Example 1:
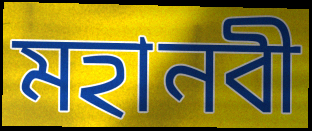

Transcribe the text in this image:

মহানবী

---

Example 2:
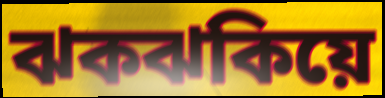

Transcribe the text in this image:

ঝকঝকিয়ে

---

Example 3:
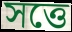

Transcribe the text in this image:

সত্তে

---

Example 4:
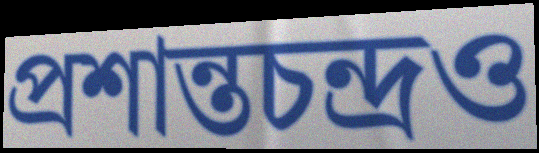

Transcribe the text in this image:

প্রশান্তচন্দ্রও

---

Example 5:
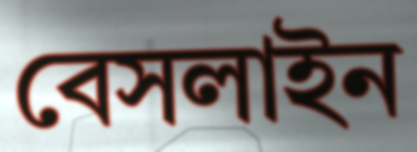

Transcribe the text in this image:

বেসলাইন